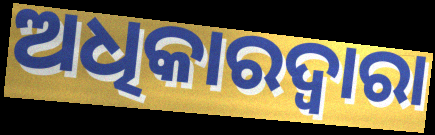
ଅଧିକାରଦ୍ୱାରା